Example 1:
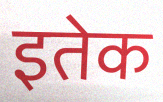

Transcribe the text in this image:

इतेक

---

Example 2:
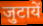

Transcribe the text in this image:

जुटायें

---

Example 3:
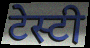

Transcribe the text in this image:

टेस्‍टी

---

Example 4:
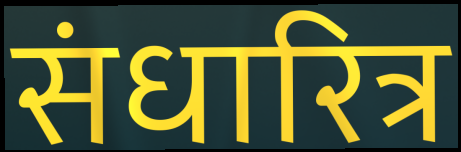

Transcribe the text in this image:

संधारित्र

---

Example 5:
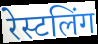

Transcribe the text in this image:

रेस्टलिंग